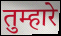
तुम्हारे